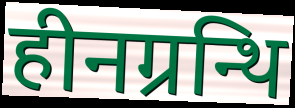
हीनग्रन्थि